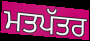
ਮਤਪੱਤਰ